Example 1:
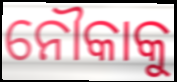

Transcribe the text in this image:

ନୌକାକୁ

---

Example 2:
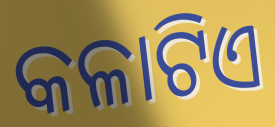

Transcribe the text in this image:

କଳାଟିଏ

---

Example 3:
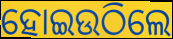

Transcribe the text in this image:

ହୋଇଉଠିଲେ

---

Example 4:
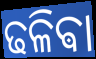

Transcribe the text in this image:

ଢଳିଵା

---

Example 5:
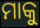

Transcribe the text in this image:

ମାକୁ